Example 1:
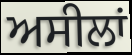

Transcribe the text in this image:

ਅਸੀਲਾਂ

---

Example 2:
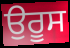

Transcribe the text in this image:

ਉਰੂਸ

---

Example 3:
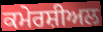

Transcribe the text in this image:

ਕਮੇਰਸ਼ੀਅਲ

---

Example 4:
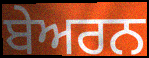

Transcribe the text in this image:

ਬੇਅਰਨ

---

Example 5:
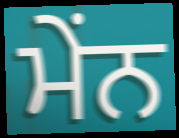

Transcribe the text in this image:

ਮੇਂਨ